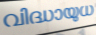
വിദ്ധായുധ